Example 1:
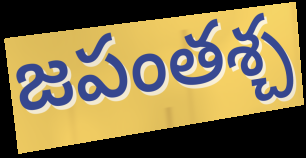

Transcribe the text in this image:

జపంతశ్చ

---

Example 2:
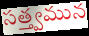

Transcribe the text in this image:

సత్త్వమున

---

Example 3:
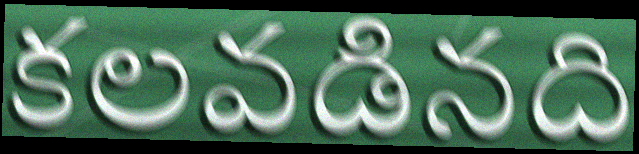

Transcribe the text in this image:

కలవడినది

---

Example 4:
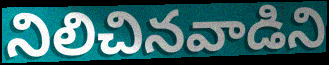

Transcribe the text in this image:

నిలిచినవాడిని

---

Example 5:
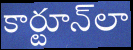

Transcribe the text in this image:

కార్టూన్‌లా